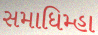
સમાધિમ્હા